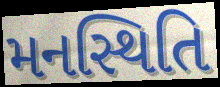
મનસ્થિતિ